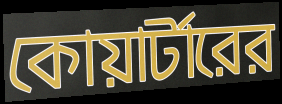
কোয়ার্টারের